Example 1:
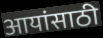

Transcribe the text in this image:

आयांसाठी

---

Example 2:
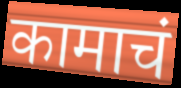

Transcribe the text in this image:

कामाचं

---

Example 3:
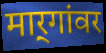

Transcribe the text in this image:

मार्गांवर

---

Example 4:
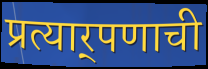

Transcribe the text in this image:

प्रत्यार्पणाची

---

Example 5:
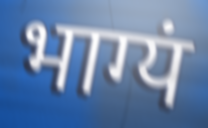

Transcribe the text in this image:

भाग्यं